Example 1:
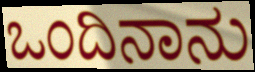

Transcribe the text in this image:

ಒಂದಿನಾನು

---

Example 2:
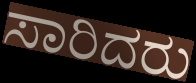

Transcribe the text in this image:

ಸಾರಿದರು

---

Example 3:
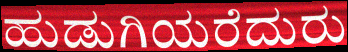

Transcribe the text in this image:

ಹುಡುಗಿಯರೆದುರು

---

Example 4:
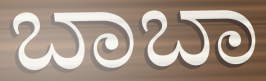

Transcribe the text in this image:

ಬಾಬಾ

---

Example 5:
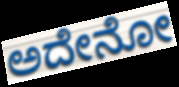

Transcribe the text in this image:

ಅದೇನೋ